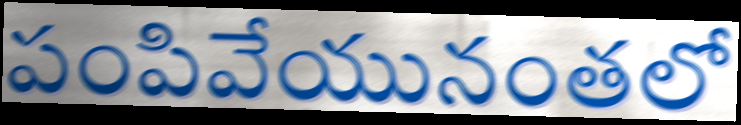
పంపివేయునంతలో